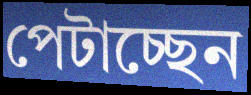
পেটাচ্ছেন